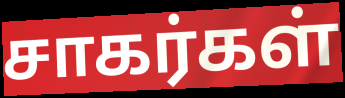
சாகர்கள்